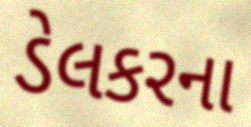
ડેલકરના